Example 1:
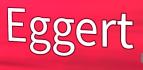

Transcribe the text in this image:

Eggert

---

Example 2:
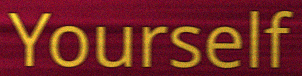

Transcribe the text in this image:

Yourself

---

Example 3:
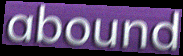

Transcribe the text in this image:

abound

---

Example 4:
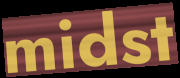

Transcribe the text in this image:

midst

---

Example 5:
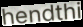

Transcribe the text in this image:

hendthi